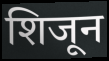
शिजून